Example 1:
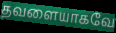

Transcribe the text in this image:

தவளையாகவே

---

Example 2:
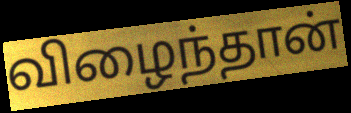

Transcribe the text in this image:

விழைந்தான்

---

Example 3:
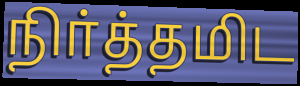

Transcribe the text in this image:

நிர்த்தமிட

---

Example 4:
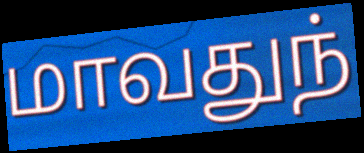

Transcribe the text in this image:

மாவதுந்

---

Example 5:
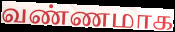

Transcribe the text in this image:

வண்ணமாக